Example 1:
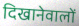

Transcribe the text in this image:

दिखानेवालों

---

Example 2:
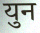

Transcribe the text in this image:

युन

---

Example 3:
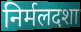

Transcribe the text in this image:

निर्मलदशा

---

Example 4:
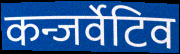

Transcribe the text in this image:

कन्जर्वेटिव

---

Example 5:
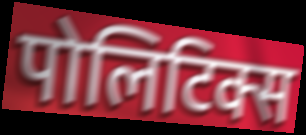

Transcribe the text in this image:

पोलिटिक्स